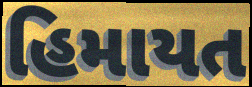
હિમાયત